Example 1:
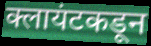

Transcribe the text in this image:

क्लायंटकडून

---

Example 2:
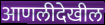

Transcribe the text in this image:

आणलीदेखील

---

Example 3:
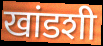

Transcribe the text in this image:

खांडशी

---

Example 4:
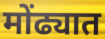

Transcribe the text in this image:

मोंढ्यात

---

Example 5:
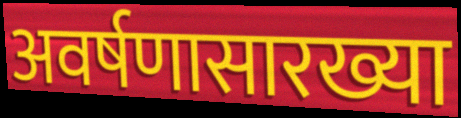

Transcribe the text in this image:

अवर्षणासारख्या